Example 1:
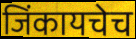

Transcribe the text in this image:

जिंकायचेच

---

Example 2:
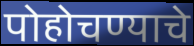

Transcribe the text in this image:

पोहोचण्याचे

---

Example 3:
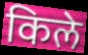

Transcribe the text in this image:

किले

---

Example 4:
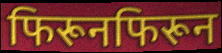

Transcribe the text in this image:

फिरूनफिरून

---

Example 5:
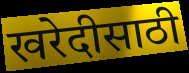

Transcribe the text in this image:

खरेदीसाठी